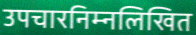
उपचारनिम्नलिखित